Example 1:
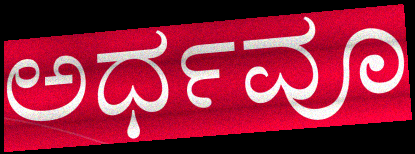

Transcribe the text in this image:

ಅರ್ಧವೂ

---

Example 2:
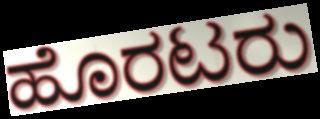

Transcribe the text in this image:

ಹೊರಟರು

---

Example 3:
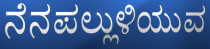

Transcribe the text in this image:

ನೆನಪಲ್ಲುಳಿಯುವ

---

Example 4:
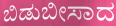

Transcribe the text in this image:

ಬಿಡುಬೀಸಾದ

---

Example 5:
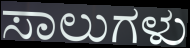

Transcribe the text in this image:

ಸಾಲುಗಳು